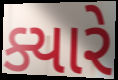
ક્યારે